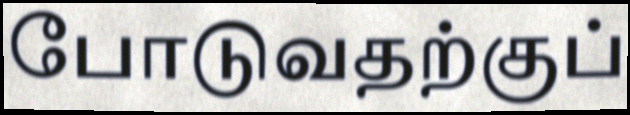
போடுவதற்குப்